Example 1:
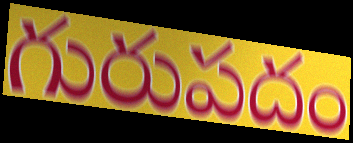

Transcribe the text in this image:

గురుపదం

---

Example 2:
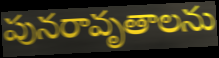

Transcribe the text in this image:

పునరావృతాలను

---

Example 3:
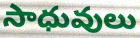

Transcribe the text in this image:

సాధువులు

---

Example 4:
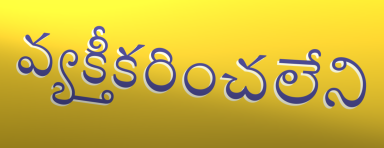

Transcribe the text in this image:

వ్యక్తీకరించలేని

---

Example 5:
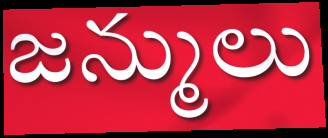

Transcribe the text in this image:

జన్ములు